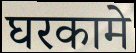
घरकामे